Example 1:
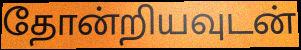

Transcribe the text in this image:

தோன்றியவுடன்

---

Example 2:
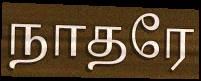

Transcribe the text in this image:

நாதரே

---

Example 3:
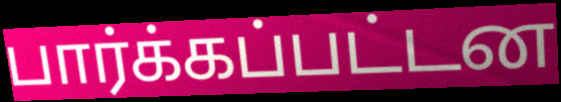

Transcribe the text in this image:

பார்க்கப்பட்டன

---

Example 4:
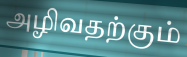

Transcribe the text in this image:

அழிவதற்கும்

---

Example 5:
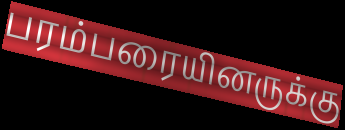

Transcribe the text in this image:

பரம்பரையினருக்கு